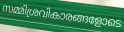
സമ്മിശ്രവികാരങ്ങളോടെ